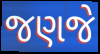
જણજે